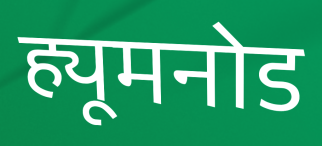
ह्यूमनोड